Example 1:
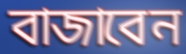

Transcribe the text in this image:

বাজাবেন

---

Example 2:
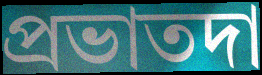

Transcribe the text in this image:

প্রভাতদা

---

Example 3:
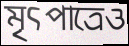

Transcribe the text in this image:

মৃৎপাত্রেও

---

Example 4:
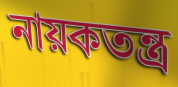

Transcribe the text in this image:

নায়কতন্ত্র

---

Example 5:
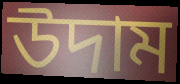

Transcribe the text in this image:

উদাম